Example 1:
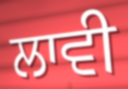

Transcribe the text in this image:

ਲਾਵੀ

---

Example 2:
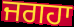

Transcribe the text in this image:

ਜਗਹਾ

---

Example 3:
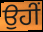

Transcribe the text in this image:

ਉਹੀਂ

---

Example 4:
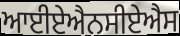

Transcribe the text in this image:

ਆਈਏਐਨਸੀਏਐਸ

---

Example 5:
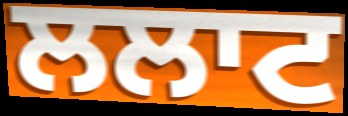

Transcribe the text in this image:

ਲਲਾਟ